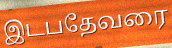
இடபதேவரை